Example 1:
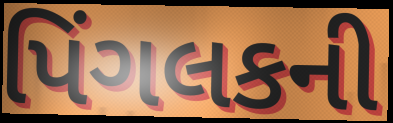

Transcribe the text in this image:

પિંગલકની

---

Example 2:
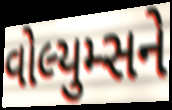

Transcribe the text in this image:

વોલ્યુમ્સને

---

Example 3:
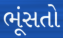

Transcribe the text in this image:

ભૂંસતો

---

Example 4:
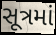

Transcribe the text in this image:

સૂત્રમાં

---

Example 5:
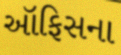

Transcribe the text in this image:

ઑફિસના